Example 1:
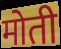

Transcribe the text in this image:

मोती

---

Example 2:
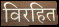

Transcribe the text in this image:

विरहित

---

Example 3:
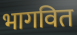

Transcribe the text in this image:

भागवित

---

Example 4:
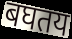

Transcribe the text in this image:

बघतय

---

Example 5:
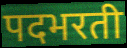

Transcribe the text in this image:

पदभरती